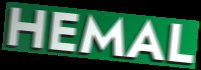
HEMAL